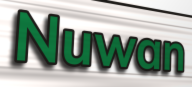
Nuwan